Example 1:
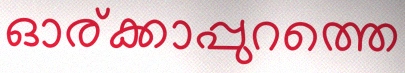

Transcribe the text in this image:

ഓര്ക്കാപ്പുറത്തെ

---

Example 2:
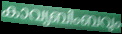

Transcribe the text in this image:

കാവ്യബിംബവും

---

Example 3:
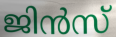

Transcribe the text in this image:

ജിൻസ്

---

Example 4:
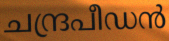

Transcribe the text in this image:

ചന്ദ്രപീഡൻ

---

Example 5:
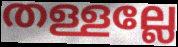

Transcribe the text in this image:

തള്ളല്ലേ